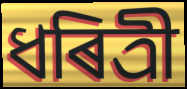
ধৰিত্ৰী